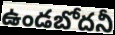
ఉండబోదనీ